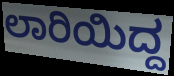
ಲಾರಿಯಿದ್ದ